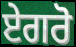
ਏਗਰੋ